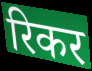
रिकर